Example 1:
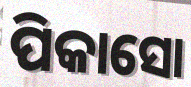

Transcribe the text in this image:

ପିକାସୋ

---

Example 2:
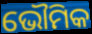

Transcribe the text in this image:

ଭୌମିକ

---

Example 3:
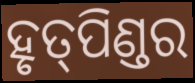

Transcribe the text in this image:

ହୃତ୍‌ପିଣ୍ଡର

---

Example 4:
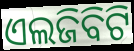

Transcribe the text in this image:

ଏଲଜିବିଟି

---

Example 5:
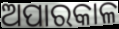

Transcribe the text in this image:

ଅପାରକାଳ